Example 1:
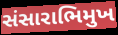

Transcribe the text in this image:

સંસારાભિમુખ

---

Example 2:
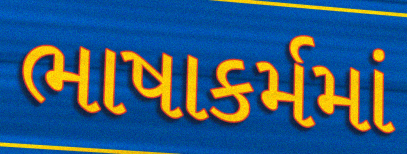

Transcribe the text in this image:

ભાષાકર્મમાં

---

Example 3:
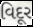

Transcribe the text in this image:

વિદૂર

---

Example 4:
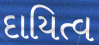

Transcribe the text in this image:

દાયિત્વ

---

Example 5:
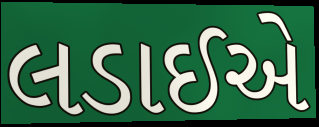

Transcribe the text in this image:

લડાઈએ